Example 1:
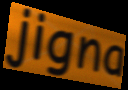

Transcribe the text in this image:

jigna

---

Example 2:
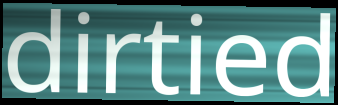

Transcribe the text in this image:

dirtied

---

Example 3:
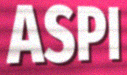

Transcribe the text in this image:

ASPI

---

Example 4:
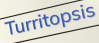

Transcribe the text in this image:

Turritopsis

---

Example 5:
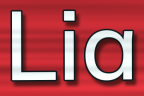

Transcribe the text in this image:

Lia